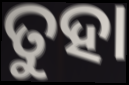
ତୁହା